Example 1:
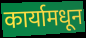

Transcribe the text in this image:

कार्यामधून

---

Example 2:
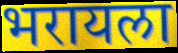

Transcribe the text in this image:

भरायला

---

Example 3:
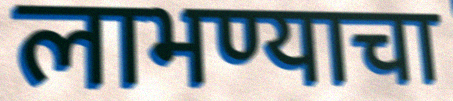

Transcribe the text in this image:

लाभण्याचा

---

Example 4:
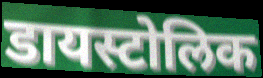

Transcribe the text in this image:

डायस्टोलिक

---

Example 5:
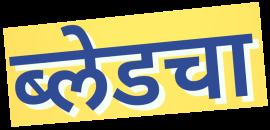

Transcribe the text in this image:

ब्लेडचा